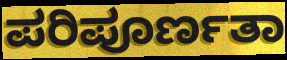
ಪರಿಪೂರ್ಣತಾ